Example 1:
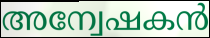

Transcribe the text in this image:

അന്വേഷകൻ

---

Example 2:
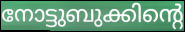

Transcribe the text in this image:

നോട്ടുബുക്കിന്റെ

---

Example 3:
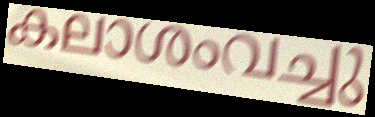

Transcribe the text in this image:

കലാശംവച്ചു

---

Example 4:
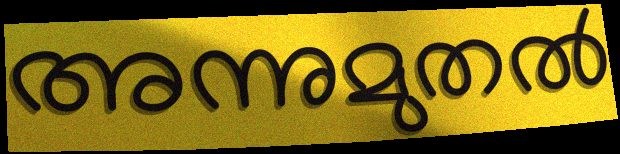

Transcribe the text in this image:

അന്നുമുതൽ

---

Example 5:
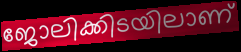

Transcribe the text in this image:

ജോലിക്കിടയിലാണ്